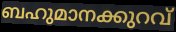
ബഹുമാനക്കുറവ്